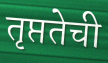
तृप्ततेची